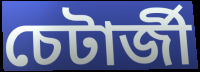
চেটাৰ্জী